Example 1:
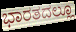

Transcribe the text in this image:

ಭಾರತದಲ್ಲೂ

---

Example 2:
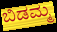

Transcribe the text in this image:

ಬಿಡಮ್ಮ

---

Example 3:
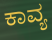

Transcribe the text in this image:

ಕಾವ್ಯ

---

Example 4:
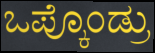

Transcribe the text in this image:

ಒಪ್ಕೊಂಡ್ರು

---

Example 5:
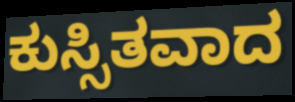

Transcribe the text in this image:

ಕುಸ್ಸಿತವಾದ